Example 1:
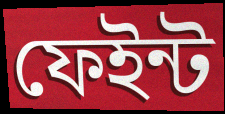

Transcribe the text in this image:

ফেইন্ট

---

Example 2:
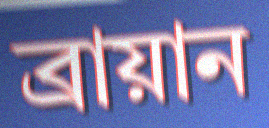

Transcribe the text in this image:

ব্রায়ান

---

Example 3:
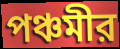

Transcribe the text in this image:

পঞ্চমীর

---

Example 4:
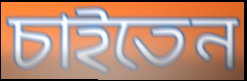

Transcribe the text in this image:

চাইতেন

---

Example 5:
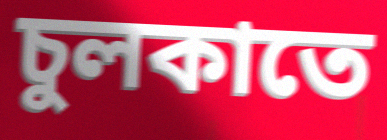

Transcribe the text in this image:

চুলকাতে